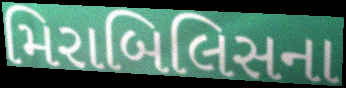
મિરાબિલિસના